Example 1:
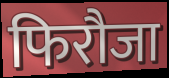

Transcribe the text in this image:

फिरौजा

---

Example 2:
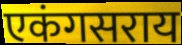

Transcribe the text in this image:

एकंगसराय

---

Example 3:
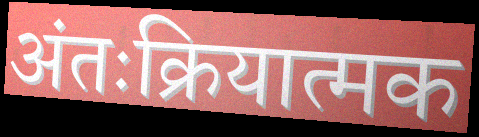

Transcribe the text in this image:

अंतःक्रियात्मक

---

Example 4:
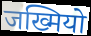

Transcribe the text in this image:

जख्मियो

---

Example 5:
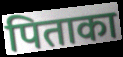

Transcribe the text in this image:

पिताका